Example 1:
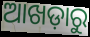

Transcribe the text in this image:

ଆଖଡ଼ାରୁ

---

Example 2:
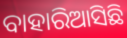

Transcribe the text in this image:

ବାହାରିଆସିଛି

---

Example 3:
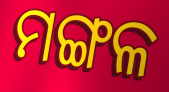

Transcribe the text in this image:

ମଙ୍ଗଳ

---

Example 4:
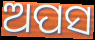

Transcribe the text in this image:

ଅପସ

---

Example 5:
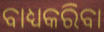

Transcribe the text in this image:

ବାଧ୍ୟକରିବା